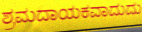
ಶ್ರಮದಾಯಕವಾದುದು